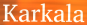
Karkala